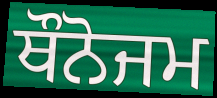
ਥੌਨੋਜਮ